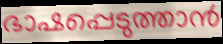
ഭാഷപ്പെടുത്താൻ